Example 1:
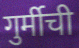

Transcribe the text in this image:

गुर्मीची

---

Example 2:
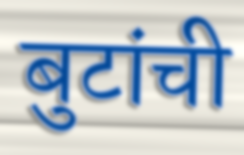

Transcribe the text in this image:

बुटांची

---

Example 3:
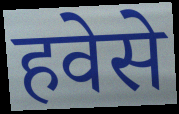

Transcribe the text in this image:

हवेसे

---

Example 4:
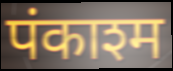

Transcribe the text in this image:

पंकाश्म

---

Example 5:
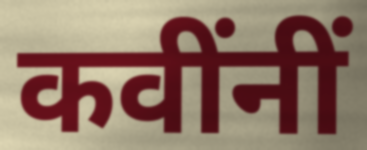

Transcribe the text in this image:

कवींनीं